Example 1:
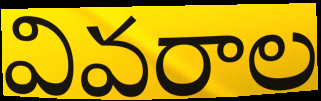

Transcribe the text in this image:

వివరాల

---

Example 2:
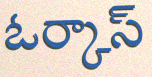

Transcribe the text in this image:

ఓర్కాస్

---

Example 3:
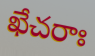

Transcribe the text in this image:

ఖేచరాః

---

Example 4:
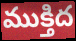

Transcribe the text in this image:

ముక్తిద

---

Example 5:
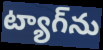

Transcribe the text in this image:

ట్యాగ్‌ను